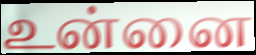
உன்னை